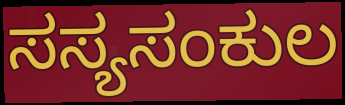
ಸಸ್ಯಸಂಕುಲ